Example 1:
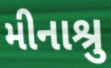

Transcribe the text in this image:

મીનાશ્રુ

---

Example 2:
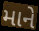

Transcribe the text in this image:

માને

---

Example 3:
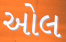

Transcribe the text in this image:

ઓલ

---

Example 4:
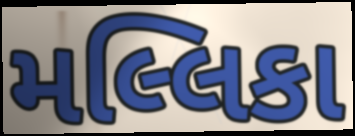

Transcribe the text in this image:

મલ્લિકા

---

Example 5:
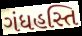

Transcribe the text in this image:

ગંધહસ્તિ